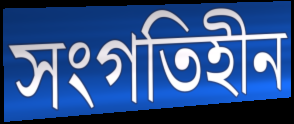
সংগতিহীন